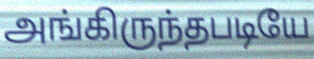
அங்கிருந்தபடியே